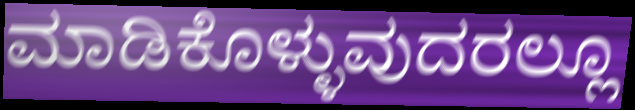
ಮಾಡಿಕೊಳ್ಳುವುದರಲ್ಲೂ